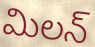
మిలన్